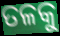
ତଳକୁ